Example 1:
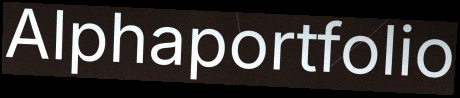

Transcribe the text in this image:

Alphaportfolio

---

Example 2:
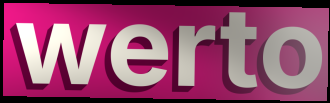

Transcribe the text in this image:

werto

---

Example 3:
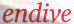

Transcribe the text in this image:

endive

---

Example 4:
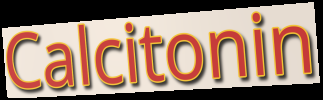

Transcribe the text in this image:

Calcitonin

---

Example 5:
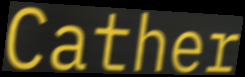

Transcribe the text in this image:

Cather